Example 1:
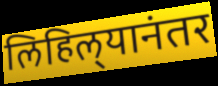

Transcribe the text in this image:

लिहिल्यानंतर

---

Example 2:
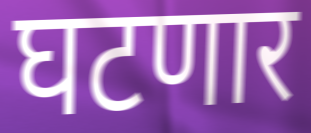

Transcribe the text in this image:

घटणार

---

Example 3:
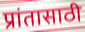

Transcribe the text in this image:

प्रांतासाठी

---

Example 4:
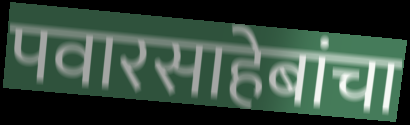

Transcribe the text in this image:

पवारसाहेबांचा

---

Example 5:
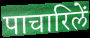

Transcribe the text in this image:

पाचारिलें